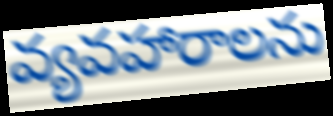
వ్యవహారాలను